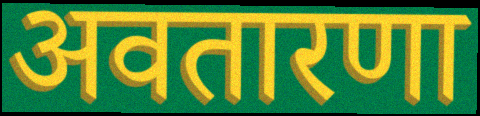
अवतारणा